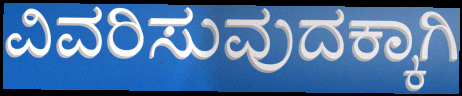
ವಿವರಿಸುವುದಕ್ಕಾಗಿ